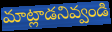
మాట్లాడనివ్వండి